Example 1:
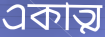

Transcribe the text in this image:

একাত্ম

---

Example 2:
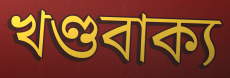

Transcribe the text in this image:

খণ্ডবাক্য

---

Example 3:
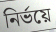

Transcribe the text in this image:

নিৰ্ভয়ে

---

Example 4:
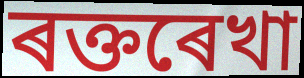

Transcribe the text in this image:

ৰক্তৰেখা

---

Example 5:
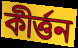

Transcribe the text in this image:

কীৰ্ত্তন